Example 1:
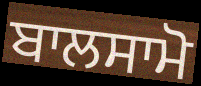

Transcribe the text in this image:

ਬਾਲਸਾਮੋ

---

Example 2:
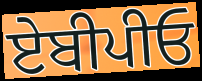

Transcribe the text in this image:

ਏਬੀਪੀਓ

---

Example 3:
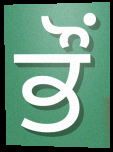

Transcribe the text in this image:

ਭੌਂ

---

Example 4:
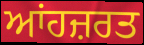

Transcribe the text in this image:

ਆਂਹਜ਼ਰਤ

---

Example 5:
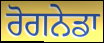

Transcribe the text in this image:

ਰੋਗਨੇਡਾ